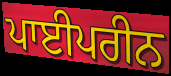
ਪਾਈਪਰੀਨ